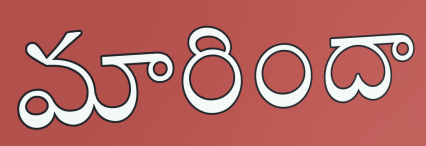
మారిందా